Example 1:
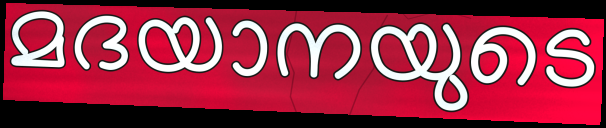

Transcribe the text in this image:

മദയാനയുടെ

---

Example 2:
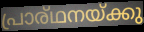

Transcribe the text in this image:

പ്രാര്ഥനയ്ക്കു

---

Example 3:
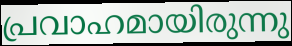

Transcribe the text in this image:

പ്രവാഹമായിരുന്നു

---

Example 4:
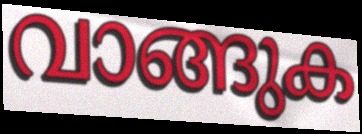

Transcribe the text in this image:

വാങ്ങുക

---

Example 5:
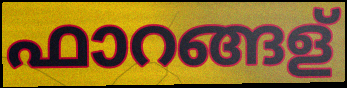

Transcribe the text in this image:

ഫാറങ്ങള്